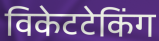
विकेटटेकिंग